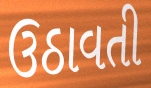
ઉઠાવતી